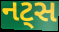
નટ્સ